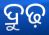
ଦ୍ରୁଢ଼